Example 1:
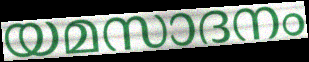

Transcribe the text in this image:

യമസാദനം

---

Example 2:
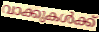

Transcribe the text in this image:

വാക്കുകൾക്ക്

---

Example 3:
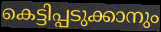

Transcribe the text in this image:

കെട്ടിപ്പടുക്കാനും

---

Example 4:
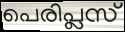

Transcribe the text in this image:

പെരിപ്ലസ്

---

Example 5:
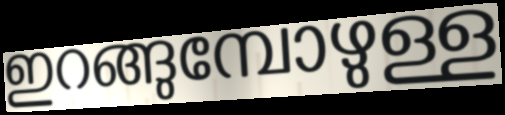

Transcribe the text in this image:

ഇറങ്ങുമ്പോഴുള്ള